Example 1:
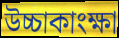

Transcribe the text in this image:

উচ্চাকাংক্ষা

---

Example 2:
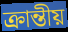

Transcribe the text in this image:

ক্ৰান্তীয়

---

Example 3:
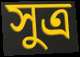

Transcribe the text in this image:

সুত্ৰ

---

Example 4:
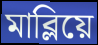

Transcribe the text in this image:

মাব্লিয়ে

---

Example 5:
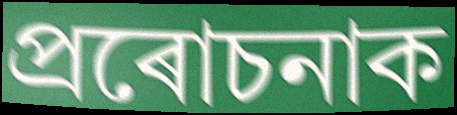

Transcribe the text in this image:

প্ৰৰোচনাক